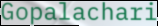
Gopalachari